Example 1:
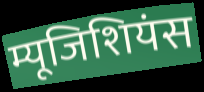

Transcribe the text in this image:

म्यूजिशियंस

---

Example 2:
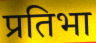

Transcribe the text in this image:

प्रतिभा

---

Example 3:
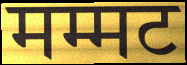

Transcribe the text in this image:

मम्मट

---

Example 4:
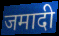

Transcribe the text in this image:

जमादी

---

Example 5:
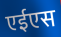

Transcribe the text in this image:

एईएस